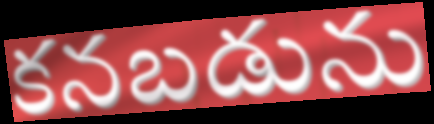
కనబడును